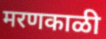
मरणकाळी